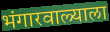
भंगारवाल्याला